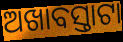
ଅଖାବସ୍ତାଟା